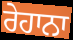
ਰੇਹਾਨਾ